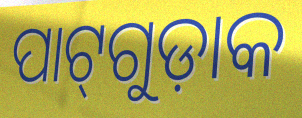
ପାଟ୍‌ଗୁଡ଼ାକ